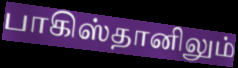
பாகிஸ்தானிலும்